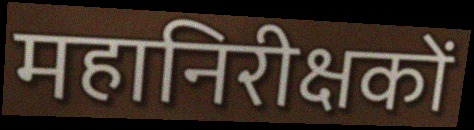
महानिरीक्षकों